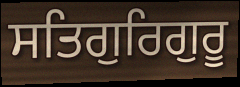
ਸਤਿਗੁਰਿਗੁਰੂ